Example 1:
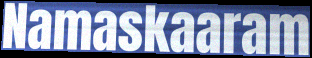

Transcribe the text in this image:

Namaskaaram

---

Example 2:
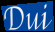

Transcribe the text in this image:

Dui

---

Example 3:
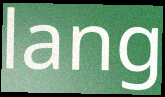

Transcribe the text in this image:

lang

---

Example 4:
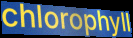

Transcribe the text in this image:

chlorophyll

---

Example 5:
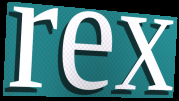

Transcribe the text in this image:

rex